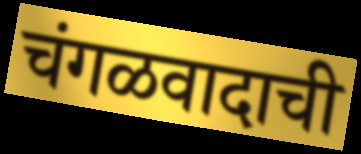
चंगळवादाची